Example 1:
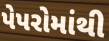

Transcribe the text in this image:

પેપરોમાંથી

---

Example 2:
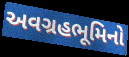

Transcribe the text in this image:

અવગ્રહભૂમિનો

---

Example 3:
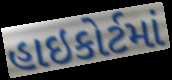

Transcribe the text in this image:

હાઇકોર્ટમાં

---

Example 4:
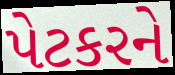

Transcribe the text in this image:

પેટકરને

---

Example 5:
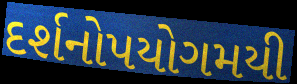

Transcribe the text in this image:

દર્શનોપયોગમયી